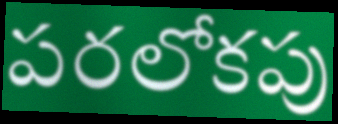
పరలోకపు